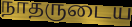
நாதருடைய